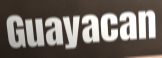
Guayacan